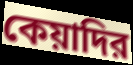
কেয়াদির